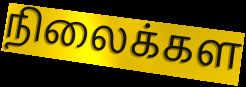
நிலைக்கள